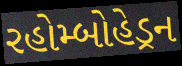
રહોમ્બોહેડ્રન